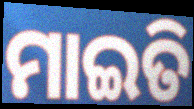
ମାଇତି